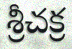
శ్రీచక్ర